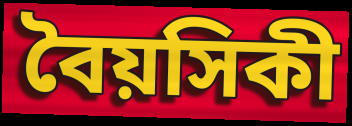
বৈয়সিকী